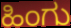
ಹಿಂಗು